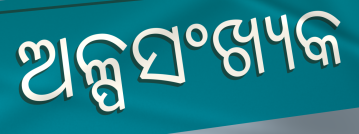
ଅଳ୍ପସଂଖ୍ୟକ